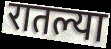
रातल्या